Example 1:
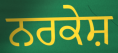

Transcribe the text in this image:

ਨਰਕੇਸ਼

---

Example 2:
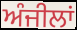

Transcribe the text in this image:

ਅੰਜੀਲਾਂ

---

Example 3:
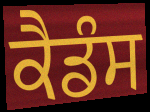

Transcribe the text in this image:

ਕੈਡੰਸ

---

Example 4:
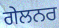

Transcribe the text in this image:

ਗੇਲਨਰ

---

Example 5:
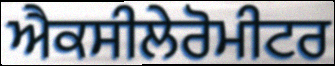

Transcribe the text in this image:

ਐਕਸੀਲੇਰੋਮੀਟਰ